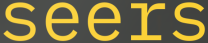
seers